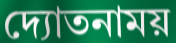
দ্যোতনাময়